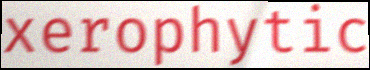
xerophytic